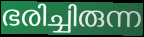
ഭരിച്ചിരുന്ന